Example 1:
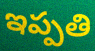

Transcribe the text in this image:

ఇప్పతి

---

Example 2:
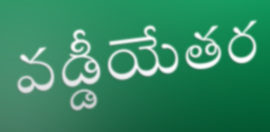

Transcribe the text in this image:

వడ్డీయేతర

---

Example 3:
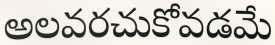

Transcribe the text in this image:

అలవరచుకోవడమే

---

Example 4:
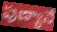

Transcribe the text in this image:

పుణ్యానే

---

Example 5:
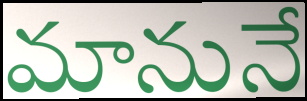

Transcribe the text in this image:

మానునే